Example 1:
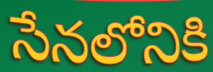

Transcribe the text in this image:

సేనలోనికి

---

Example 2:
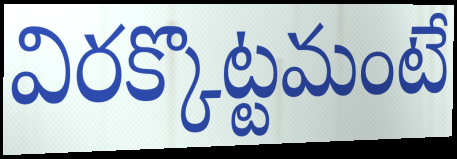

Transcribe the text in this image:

విరక్కొట్టమంటే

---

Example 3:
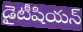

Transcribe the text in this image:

డైటీషియన్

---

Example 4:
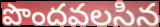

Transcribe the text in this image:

పొందవలసిన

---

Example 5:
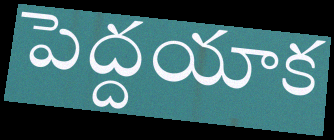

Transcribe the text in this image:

పెద్దయాక